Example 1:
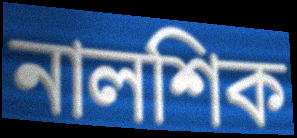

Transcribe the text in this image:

নালশিক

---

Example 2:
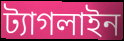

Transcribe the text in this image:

ট্যাগলাইন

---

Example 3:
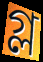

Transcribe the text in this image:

গ্ল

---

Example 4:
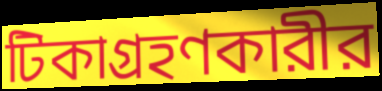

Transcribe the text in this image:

টিকাগ্রহণকারীর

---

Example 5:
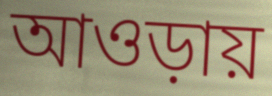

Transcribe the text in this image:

আওড়ায়